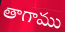
తాగాము